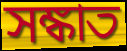
সঙ্কাত